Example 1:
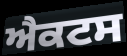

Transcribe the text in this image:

ਐਕਟਸ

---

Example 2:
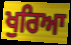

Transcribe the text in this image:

ਖੁਰਿਆ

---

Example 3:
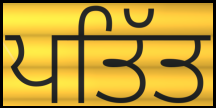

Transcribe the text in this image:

ਪਤਿੱਤ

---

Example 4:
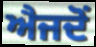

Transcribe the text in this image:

ਐਜਦੋਂ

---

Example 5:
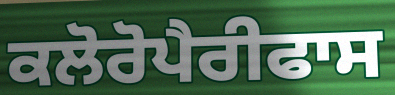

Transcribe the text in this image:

ਕਲੋਰੋਪੈਰੀਫਾਸ